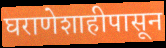
घराणेशाहीपासून